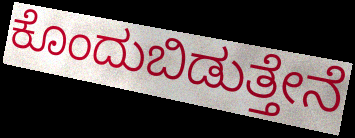
ಕೊಂದುಬಿಡುತ್ತೇನೆ